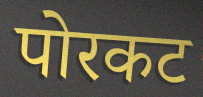
पोरकट